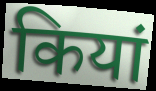
कियां